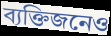
ব্যক্তিজনেও